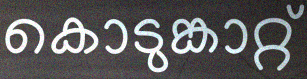
കൊടുങ്കാറ്റ്